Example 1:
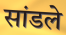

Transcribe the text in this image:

सांडले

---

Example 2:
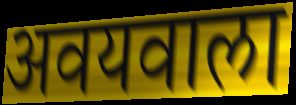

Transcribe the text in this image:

अवयवाला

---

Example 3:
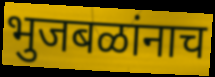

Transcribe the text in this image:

भुजबळांनाच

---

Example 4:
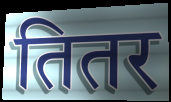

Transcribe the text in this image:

तितर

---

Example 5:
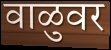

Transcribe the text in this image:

वाळुवर